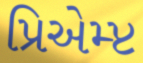
પ્રિએમ્પ્ટ